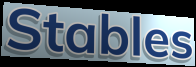
Stables